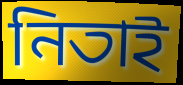
নিতাই